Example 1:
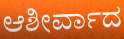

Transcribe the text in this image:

ಆಶೀರ್ವಾದ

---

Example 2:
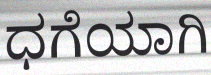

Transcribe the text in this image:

ಧಗೆಯಾಗಿ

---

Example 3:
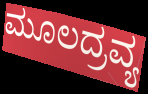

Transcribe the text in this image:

ಮೂಲದ್ರವ್ಯ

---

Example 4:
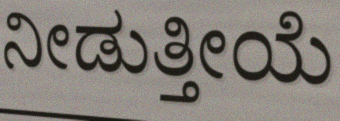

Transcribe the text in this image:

ನೀಡುತ್ತೀಯೆ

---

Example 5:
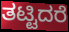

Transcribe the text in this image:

ತಟ್ಟಿದರೆ